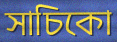
সাচিকো